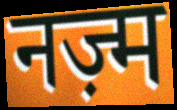
नज़्म